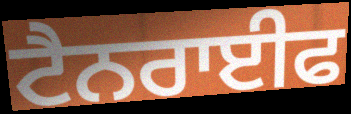
ਟੈਨਰਾਈਫ